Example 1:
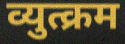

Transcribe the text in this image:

व्युत्क्रम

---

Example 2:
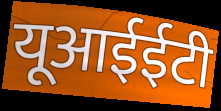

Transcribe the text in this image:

यूआईईटी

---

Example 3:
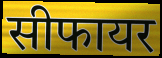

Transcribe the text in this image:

सीफायर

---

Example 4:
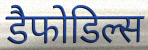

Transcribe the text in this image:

डैफोडिल्स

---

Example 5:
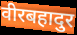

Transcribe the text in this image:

वीरबहादुर